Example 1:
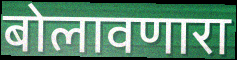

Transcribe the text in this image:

बोलावणारा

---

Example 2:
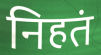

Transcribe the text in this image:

निहतं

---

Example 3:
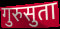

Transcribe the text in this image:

गुरुसुता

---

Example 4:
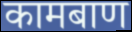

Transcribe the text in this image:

कामबाण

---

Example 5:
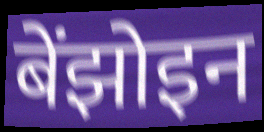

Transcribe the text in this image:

बेंझोइन